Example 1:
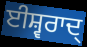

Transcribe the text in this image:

ਈਸ਼੍ਵਰਾਦ੍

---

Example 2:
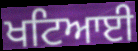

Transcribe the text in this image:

ਖਟਿਆਈ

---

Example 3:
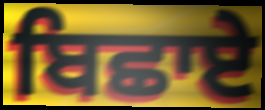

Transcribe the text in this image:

ਬਿਛਾਏ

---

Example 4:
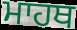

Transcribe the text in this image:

ਮਾਹਥ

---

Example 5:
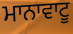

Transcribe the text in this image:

ਮਾਨਾਵਾਟੂ